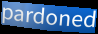
pardoned